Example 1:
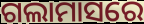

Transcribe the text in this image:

ଗଲାମାସରେ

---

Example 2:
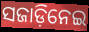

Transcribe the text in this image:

ସଜାଡ଼ିନେଇ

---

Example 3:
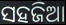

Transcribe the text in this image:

ସହଜିଆ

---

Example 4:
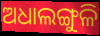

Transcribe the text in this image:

ଅଧାଲଙ୍ଗୁଳି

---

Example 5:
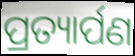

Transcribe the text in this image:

ପ୍ରତ୍ୟାର୍ପଣ